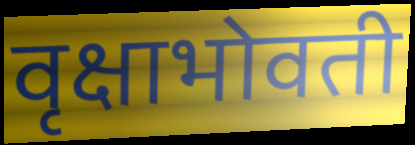
वृक्षाभोवती